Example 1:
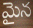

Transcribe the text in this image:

మైన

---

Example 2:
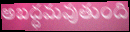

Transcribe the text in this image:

అబద్ధమవుతుంది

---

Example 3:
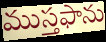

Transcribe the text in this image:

ముస్తఫాను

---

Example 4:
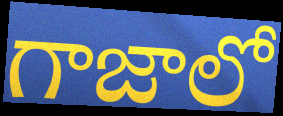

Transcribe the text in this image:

గాజాలో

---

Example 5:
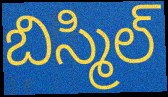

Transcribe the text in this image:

బిస్మిల్